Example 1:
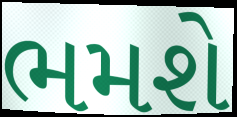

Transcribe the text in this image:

ભમશે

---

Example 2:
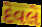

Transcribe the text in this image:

દેવલે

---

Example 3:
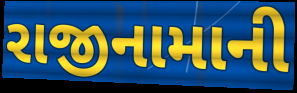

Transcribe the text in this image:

રાજીનામાની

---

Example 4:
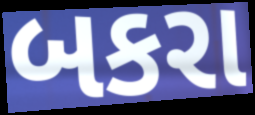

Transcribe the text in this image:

બકરા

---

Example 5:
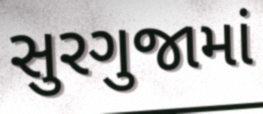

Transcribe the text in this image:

સુરગુજામાં